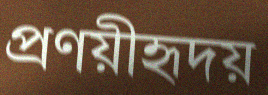
প্রণয়ীহৃদয়